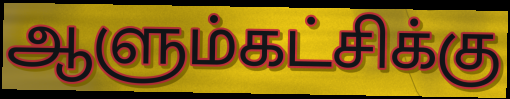
ஆளும்கட்சிக்கு